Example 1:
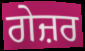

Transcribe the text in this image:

ਗੇਜ਼ਰ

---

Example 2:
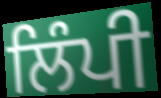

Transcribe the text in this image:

ਲਿੰਪੀ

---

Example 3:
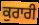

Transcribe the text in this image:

ਕੁਰਾਰੀ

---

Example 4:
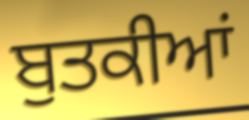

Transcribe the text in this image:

ਬੁਤਕੀਆਂ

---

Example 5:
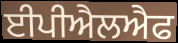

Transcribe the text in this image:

ਈਪੀਐਲਐਫ